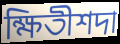
ক্ষিতীশদা